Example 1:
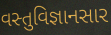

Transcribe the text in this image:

વસ્તુવિજ્ઞાનસાર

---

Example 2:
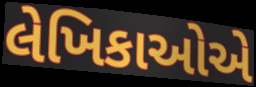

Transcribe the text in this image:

લેખિકાઓએ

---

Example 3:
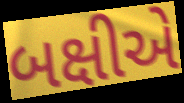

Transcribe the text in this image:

બક્ષીએ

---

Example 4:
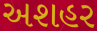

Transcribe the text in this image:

અશહર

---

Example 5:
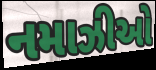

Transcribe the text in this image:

નમાઝીઓ